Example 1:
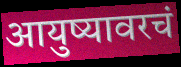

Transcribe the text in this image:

आयुष्यावरचं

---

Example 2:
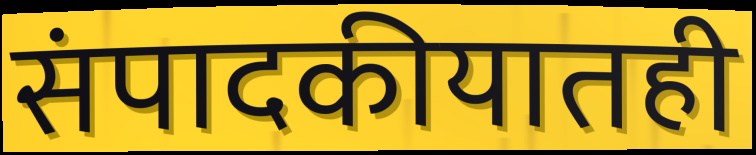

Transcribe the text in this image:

संपादकीयातही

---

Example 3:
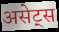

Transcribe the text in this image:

असेट्स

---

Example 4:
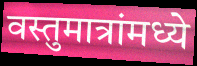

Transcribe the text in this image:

वस्तुमात्रांमध्ये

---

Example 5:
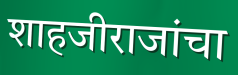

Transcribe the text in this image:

शाहजीराजांचा